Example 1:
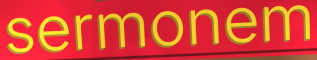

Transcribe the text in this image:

sermonem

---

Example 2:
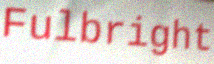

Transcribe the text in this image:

Fulbright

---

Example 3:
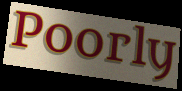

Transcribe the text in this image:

Poorly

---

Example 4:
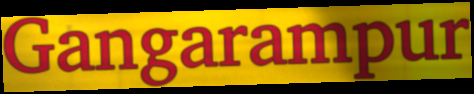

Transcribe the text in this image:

Gangarampur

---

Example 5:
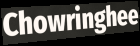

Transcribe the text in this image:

Chowringhee